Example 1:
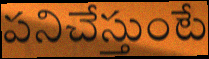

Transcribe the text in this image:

పనిచేస్తుంటే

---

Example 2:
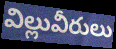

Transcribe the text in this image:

విల్లువీరులు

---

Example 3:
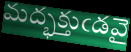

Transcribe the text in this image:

మద్భక్తుఁడవై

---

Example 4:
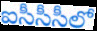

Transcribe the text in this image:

ఐసీసీసీలో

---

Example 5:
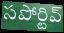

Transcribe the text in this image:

సపోర్టివ్